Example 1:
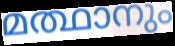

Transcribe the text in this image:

മത്ഥാനും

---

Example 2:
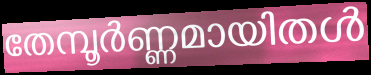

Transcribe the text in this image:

തേമ്പൂർണ്ണമായിതൾ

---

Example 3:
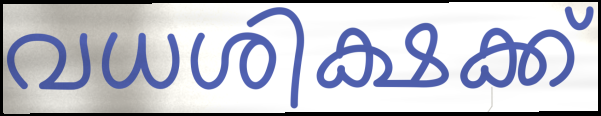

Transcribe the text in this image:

വധശിക്ഷക്ക്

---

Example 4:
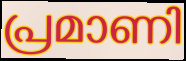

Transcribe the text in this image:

പ്രമാണി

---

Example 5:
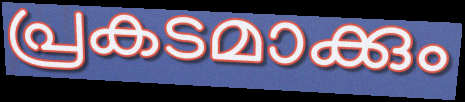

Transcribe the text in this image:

പ്രകടമാക്കും